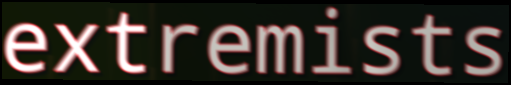
extremists